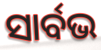
ସାର୍ବଭ